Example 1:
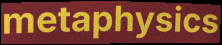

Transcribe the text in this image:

metaphysics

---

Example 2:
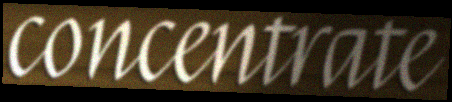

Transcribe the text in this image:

concentrate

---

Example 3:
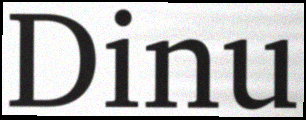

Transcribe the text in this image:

Dinu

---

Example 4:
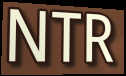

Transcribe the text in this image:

NTR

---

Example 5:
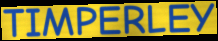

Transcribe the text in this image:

TIMPERLEY